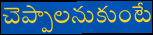
చెప్పాలనుకుంటే